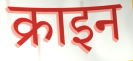
क्राइन